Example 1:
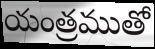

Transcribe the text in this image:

యంత్రముతో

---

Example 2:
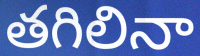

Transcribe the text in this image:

తగిలినా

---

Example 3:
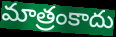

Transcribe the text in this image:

మాత్రంకాదు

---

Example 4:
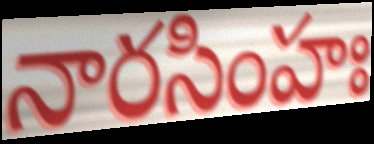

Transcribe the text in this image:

నారసింహః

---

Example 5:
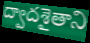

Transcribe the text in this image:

ద్వాదశైతాని